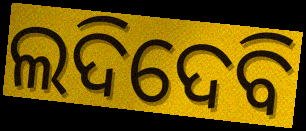
ଲଦିଦେବି